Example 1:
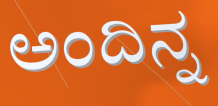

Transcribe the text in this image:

ಅಂದಿನ್ನ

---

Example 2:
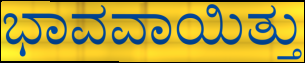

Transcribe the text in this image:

ಭಾವವಾಯಿತ್ತು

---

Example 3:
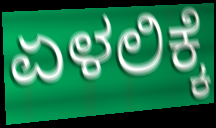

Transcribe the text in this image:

ಏಳಲಿಕ್ಕೆ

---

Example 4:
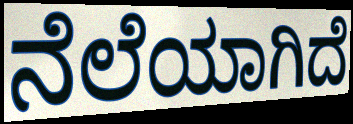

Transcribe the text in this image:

ನೆಲೆಯಾಗಿದೆ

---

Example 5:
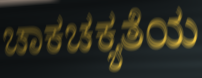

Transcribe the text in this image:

ಚಾಕಚಕ್ಯತೆಯ